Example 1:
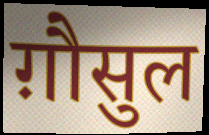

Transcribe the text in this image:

ग़ौसुल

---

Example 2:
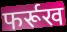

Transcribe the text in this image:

फर्रूख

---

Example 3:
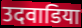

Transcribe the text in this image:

उदवाडिया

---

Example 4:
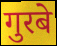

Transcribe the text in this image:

गुरबे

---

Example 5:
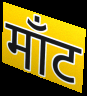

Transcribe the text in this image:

माँट